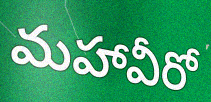
మహావీరో